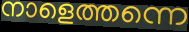
നാളെത്തന്നെ